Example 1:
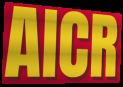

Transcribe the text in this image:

AICR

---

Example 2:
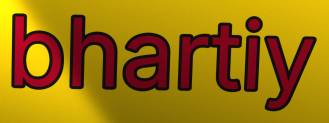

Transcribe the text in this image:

bhartiy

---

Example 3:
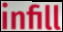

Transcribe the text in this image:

infill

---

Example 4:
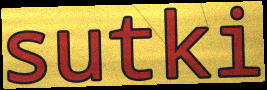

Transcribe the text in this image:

sutki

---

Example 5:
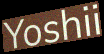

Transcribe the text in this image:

Yoshii